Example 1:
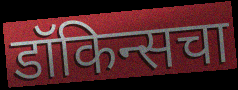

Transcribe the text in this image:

डॉकिन्सचा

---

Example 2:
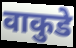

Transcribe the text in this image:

वाकुडे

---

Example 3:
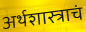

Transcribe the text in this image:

अर्थशास्त्राचं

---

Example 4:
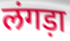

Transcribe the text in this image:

लंगड़ा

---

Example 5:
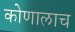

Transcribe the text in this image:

कोणालाच